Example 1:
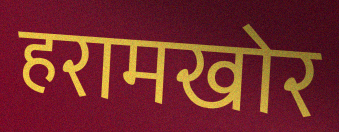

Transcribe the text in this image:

हरामखोर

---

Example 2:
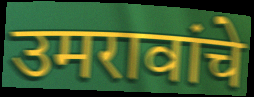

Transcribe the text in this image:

उमरावांचे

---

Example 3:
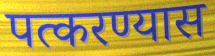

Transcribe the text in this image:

पत्करण्यास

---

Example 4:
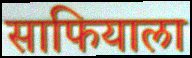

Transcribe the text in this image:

साफियाला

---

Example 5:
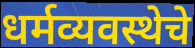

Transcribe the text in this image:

धर्मव्यवस्थेचे